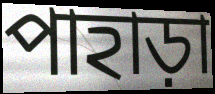
পাহাড়া